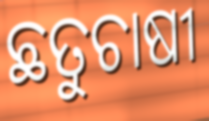
ଛତୁଚାଷୀ